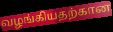
வழங்கியதற்கான